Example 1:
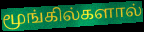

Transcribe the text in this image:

மூங்கில்களால்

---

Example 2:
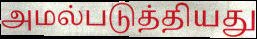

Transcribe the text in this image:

அமல்படுத்தியது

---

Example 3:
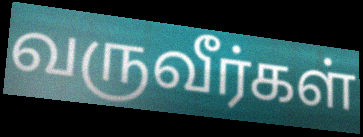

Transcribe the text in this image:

வருவீர்கள்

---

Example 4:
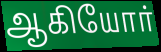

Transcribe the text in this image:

ஆகியோர்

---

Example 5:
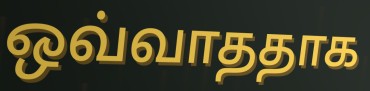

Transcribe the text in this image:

ஒவ்வாததாக